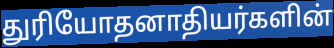
துரியோதனாதியர்களின்